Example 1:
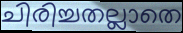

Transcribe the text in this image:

ചിരിച്ചതല്ലാതെ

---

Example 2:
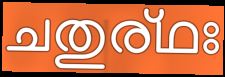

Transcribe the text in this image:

ചതുര്ഥഃ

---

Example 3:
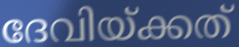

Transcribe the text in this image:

ദേവിയ്ക്കത്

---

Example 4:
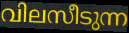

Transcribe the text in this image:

വിലസീടുന്ന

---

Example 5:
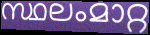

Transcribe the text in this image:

സ്ഥലംമാറ്റ